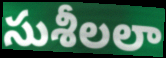
సుశీలలా